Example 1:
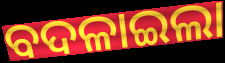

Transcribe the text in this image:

ବଦଳାଇଲା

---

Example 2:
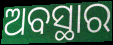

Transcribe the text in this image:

ଅବସ୍ଥାର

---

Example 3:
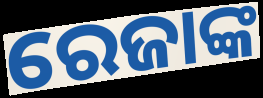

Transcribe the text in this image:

ରେଜାଙ୍କ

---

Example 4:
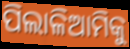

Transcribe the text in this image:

ପିଲାଳିଆମିକୁ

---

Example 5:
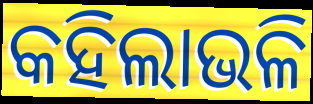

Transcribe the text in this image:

କହିଲାଭଳି